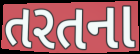
તરતના